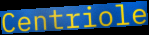
Centriole